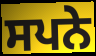
ਸਪਨੇ